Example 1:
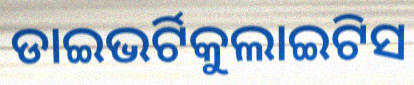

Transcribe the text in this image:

ଡାଇଭର୍ଟିକୁଲାଇଟିସ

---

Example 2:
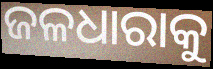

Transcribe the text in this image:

ଜଳଧାରାକୁ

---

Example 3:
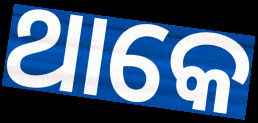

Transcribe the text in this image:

ଥାକେ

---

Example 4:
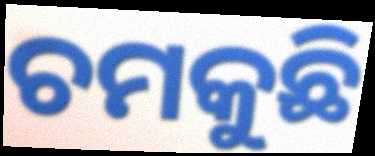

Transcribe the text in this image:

ଚମକୁଛି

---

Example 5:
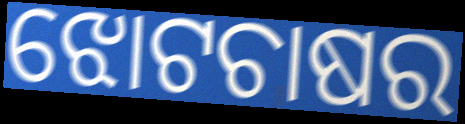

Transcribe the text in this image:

ଝୋଟଚାଷର